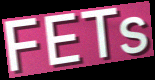
FETs